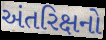
અંતરિક્ષનો